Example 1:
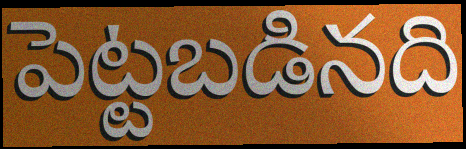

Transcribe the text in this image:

పెట్టబడినది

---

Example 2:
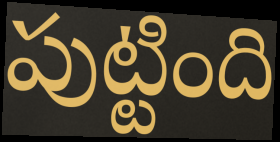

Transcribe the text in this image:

పుట్టింది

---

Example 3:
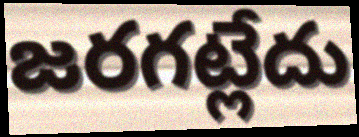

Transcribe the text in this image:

జరగట్లేదు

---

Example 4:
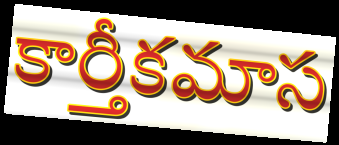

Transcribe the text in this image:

కార్తీకమాస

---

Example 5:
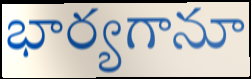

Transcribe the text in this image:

భార్యగానూ